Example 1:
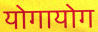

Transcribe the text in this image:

योगायोग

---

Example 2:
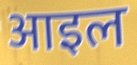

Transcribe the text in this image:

आइल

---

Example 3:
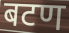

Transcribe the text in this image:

बटण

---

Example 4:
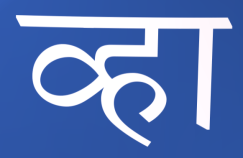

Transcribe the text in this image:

व्हा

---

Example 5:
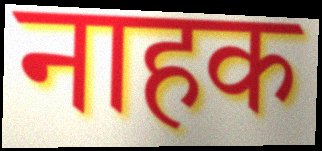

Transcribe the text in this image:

नाहक